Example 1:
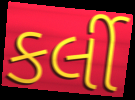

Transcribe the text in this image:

કર્લી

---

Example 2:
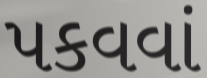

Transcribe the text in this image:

પકવવાં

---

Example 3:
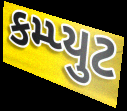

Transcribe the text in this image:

કમ્પ્યુટ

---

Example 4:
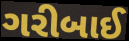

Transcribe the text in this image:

ગરીબાઈ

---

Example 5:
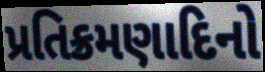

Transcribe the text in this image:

પ્રતિક્રમણાદિનો